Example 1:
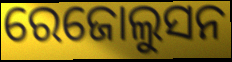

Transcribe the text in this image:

ରେଜୋଲୁସନ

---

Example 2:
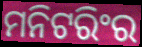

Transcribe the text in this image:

ମନିଟରିଂର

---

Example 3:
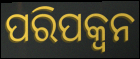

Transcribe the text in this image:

ପରିପକ୍ବନ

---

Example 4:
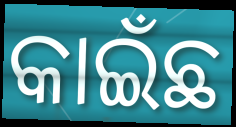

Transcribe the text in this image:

କାଇଁଛ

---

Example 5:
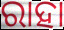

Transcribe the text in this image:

ରାହା